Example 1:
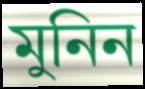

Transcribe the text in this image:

মুনিন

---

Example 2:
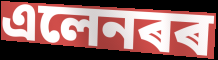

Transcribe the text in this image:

এলেনৰৰ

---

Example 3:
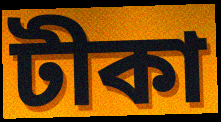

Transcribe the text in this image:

টীকা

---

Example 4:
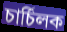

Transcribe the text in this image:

চাৰ্চিলক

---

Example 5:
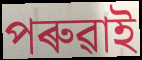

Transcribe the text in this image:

পৰুৱাই